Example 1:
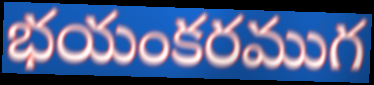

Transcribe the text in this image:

భయంకరముగ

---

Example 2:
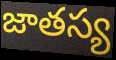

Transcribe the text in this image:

జాతస్య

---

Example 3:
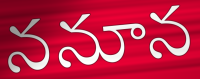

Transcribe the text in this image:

ననూన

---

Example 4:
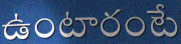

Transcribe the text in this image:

ఉంటారంటే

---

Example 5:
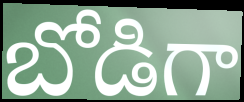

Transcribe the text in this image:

బోడిగా